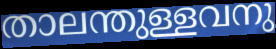
താലന്തുള്ളവനു